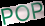
POP